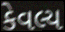
કેવલ્ય